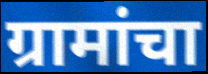
ग्रामांचा